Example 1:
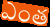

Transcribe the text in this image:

ఎంత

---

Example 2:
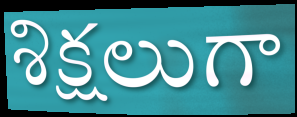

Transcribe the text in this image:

శిక్షలుగా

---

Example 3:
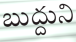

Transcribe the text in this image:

బుద్దుని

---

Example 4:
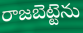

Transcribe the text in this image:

రాజబెట్టెను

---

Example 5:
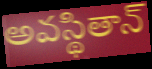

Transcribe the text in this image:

అవస్థితాన్